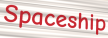
Spaceship